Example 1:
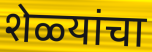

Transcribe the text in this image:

शेळ्यांचा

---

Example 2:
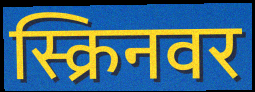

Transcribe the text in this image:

स्क्रिनवर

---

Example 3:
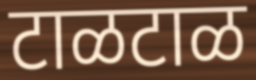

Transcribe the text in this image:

टाळटाळ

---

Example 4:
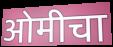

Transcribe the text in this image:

ओमीचा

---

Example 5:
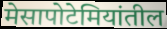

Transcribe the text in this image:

मेसापोटेमियांतील